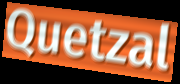
Quetzal